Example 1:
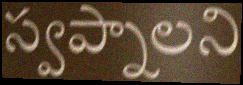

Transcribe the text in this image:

స్వప్నాలని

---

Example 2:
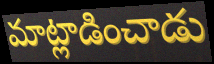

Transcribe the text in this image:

మాట్లాడించాడు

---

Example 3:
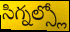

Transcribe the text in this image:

సిగ్నల్స్లో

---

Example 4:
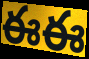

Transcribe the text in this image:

ఈఈ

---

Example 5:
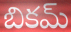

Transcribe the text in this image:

బికమ్